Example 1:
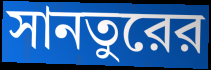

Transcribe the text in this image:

সানতুরের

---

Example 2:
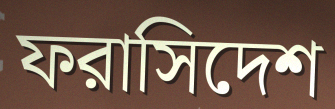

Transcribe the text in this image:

ফরাসিদেশ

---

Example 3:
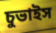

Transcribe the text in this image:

চুভাইস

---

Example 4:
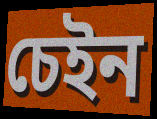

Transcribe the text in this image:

চেইন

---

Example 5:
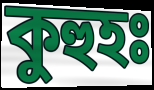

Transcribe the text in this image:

কুহুহঃ